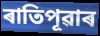
ৰাতিপূৱাৰ